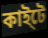
কাই্টে